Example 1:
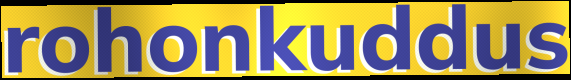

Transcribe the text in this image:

rohonkuddus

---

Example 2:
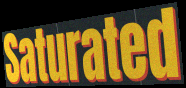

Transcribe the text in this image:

Saturated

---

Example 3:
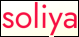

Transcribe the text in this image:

soliya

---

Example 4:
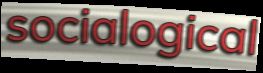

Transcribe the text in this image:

socialogical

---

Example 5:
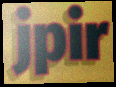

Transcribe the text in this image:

jpir